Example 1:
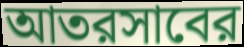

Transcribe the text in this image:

আতরসাবের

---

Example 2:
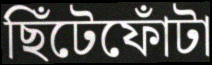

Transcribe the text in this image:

ছিঁটেফোঁটা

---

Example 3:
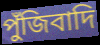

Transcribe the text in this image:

পুঁজিবাদি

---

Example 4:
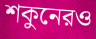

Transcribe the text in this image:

শকুনেরও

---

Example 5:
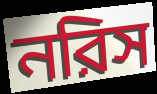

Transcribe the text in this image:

নরিস